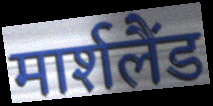
मार्शलैंड